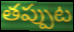
తప్పుట